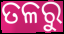
ତଳରୁ